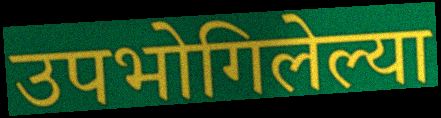
उपभोगिलेल्या